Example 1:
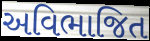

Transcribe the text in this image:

અવિભાજિત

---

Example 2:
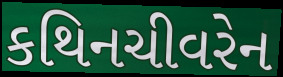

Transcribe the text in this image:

કથિનચીવરેન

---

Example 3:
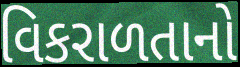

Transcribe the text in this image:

વિકરાળતાનો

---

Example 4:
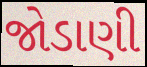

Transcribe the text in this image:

જોડાણી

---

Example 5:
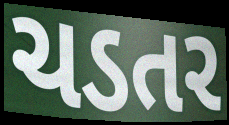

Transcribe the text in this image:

ચડતર